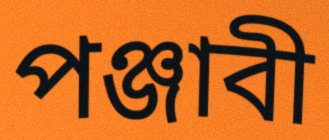
পঞ্জাবী